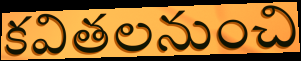
కవితలనుంచి